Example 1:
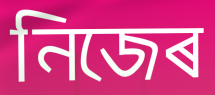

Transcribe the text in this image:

নিজেৰ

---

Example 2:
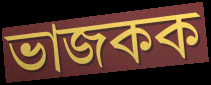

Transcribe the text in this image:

ভাজকক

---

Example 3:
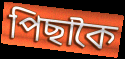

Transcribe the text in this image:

পিছাকৈ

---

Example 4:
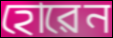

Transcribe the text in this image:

হোৱেন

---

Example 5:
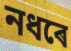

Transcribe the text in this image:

নধৰে